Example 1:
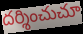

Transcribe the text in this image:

దర్శించుచూ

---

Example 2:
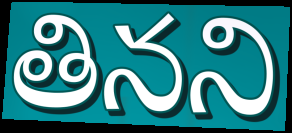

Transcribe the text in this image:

తినని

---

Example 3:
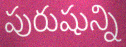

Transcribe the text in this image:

పురుషున్ని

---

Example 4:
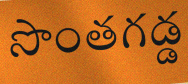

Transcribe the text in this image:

సొంతగడ్డ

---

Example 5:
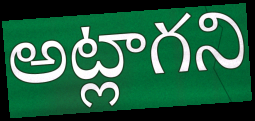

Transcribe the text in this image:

అట్లాగని